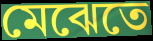
মেঝেতে